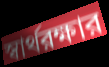
স্বার্থরক্ষার